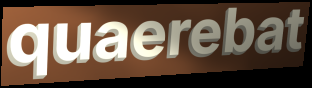
quaerebat